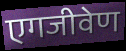
एगजीवेण